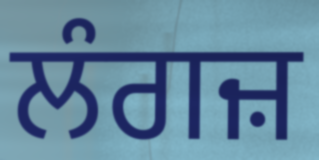
ਲੰਗਜ਼